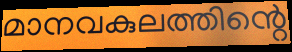
മാനവകുലത്തിന്റെ